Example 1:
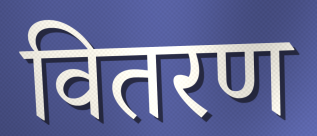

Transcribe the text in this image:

वितरण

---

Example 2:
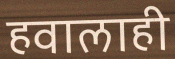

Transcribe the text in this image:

हवालाही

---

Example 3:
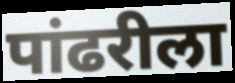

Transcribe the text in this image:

पांढरीला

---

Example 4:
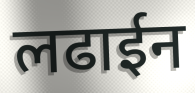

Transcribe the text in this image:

लढाईन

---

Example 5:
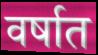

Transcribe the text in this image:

वर्षात